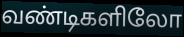
வண்டிகளிலோ